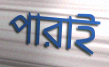
পারাই